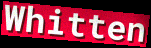
Whitten